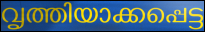
വൃത്തിയാക്കപ്പെട്ട